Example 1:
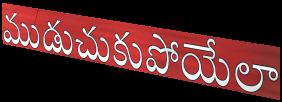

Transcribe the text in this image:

ముడుచుకుపోయేలా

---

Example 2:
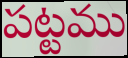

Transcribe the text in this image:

పట్టము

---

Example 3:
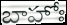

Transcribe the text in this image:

బాహోః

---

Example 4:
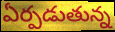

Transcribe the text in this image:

ఏర్పడుతున్న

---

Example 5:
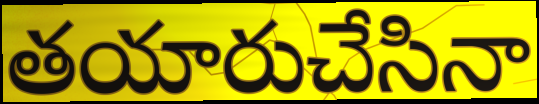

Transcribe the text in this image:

తయారుచేసినా